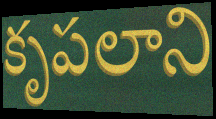
కృపలాని